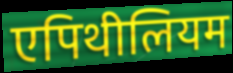
एपिथीलियम